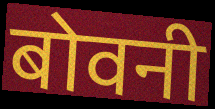
बोवनी